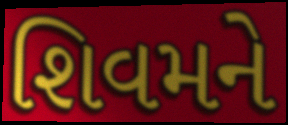
શિવમને